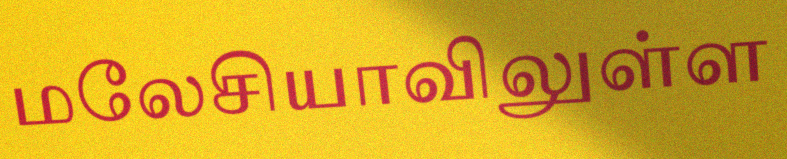
மலேசியாவிலுள்ள